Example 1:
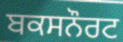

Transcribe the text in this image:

ਬਕਸਨੌਰਟ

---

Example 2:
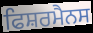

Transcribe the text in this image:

ਫਿਸ਼ਰਮੈਨਸ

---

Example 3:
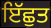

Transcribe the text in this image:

ਇੱਛੁਤ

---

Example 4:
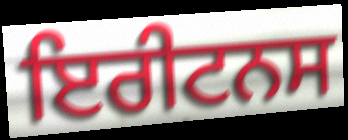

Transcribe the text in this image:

ਇਰੀਟਨਸ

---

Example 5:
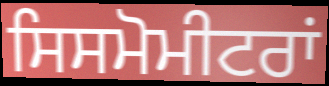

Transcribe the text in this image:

ਸਿਸਮੋਮੀਟਰਾਂ